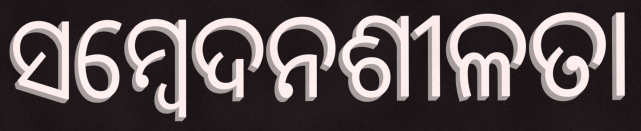
ସମ୍ଵେଦନଶୀଳତା